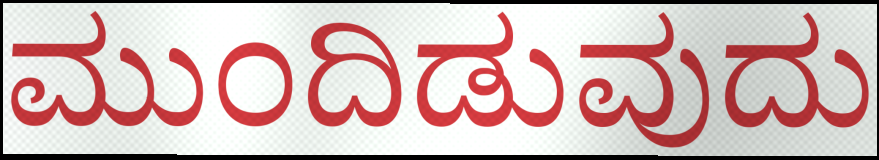
ಮುಂದಿಡುವುದು